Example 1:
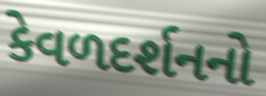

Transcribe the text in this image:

કેવળદર્શનનો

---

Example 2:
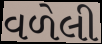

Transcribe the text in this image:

વળેલી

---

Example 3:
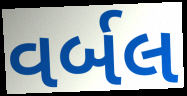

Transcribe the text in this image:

વર્બલ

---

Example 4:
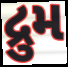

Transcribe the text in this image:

દ્રુમ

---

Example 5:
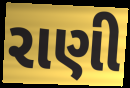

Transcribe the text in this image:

રાણી